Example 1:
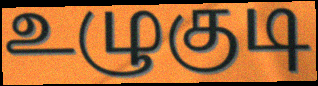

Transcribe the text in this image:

உழுகுடி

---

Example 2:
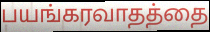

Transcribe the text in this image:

பயங்கரவாதத்தை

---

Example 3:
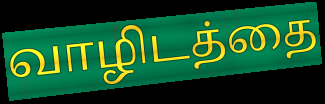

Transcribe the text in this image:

வாழிடத்தை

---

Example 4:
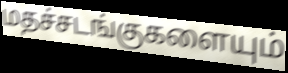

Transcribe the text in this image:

மதச்சடங்குகளையும்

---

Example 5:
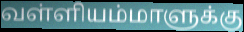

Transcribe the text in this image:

வள்ளியம்மாளுக்கு